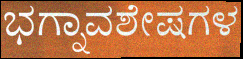
ಭಗ್ನಾವಶೇಷಗಳ